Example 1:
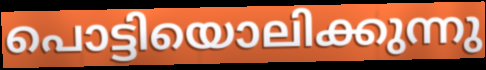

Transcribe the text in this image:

പൊട്ടിയൊലിക്കുന്നു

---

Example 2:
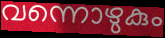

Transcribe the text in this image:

വന്നൊഴുകും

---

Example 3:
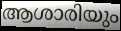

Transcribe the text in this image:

ആശാരിയും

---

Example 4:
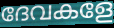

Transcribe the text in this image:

ദേവകളേ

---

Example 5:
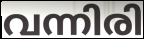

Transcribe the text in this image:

വന്നിരി